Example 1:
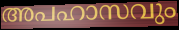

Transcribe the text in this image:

അപഹാസവും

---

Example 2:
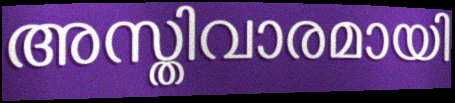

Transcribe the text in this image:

അസ്തിവാരമായി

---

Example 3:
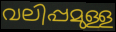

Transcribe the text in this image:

വലിപ്പമുള്ള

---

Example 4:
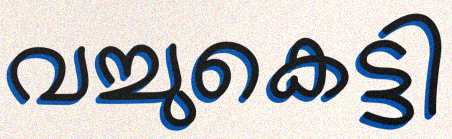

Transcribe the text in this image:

വച്ചുകെട്ടി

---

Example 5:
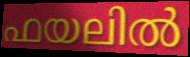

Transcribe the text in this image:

ഫയലിൽ